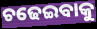
ଚଢେଇବାକୁ